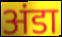
अंडा